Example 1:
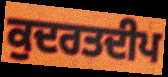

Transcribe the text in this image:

ਕੁਦਰਤਦੀਪ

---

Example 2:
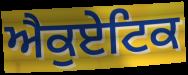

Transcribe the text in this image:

ਐਕੁਏਟਿਕ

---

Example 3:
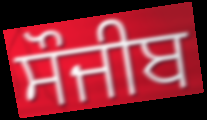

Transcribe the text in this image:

ਸੌਜੀਬ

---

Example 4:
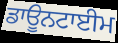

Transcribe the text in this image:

ਡਾਊਨਟਾਈਮ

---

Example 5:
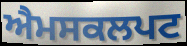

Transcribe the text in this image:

ਐਮਸਕਲਪਟ